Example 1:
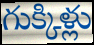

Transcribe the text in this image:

గుక్కిళ్లు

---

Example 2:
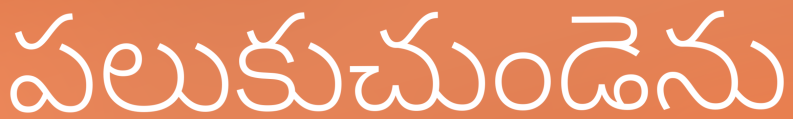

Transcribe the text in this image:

పలుకుచుండెను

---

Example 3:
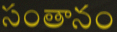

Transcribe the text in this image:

సంతానం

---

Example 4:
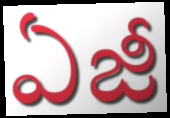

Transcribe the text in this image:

ఏజీ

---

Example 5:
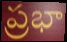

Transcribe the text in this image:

ప్రభా